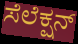
ಸೆಲೆಕ್ಷನ್